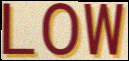
LOW